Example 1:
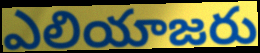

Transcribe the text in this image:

ఎలియాజరు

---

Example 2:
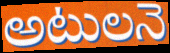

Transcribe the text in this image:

అటులనె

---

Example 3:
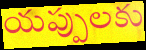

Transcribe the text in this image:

యప్పులకు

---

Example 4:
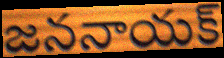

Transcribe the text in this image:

జననాయక్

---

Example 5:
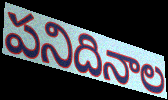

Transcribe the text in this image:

పనిదినాల